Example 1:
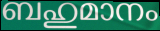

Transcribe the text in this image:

ബഹുമാനം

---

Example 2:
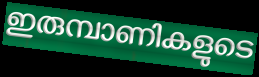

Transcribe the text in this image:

ഇരുമ്പാണികളുടെ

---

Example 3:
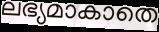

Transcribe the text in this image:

ലഭ്യമാകാതെ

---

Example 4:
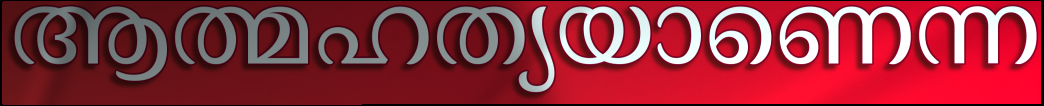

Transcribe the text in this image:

ആത്മഹത്യയാണെന്ന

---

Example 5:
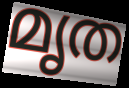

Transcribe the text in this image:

മൃത